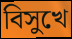
বিসুখে